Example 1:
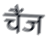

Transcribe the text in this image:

चैंज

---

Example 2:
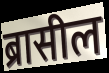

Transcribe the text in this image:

ब्रासील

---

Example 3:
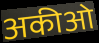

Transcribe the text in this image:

अकीओ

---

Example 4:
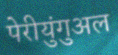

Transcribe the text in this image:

पेरीयुंगुअल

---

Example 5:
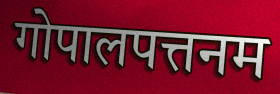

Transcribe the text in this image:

गोपालपत्तनम